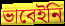
ভাবেইনি